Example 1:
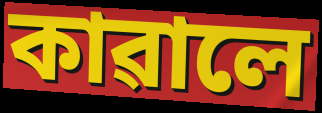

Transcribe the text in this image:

কাৱালে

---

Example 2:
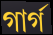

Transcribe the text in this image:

গাৰ্গ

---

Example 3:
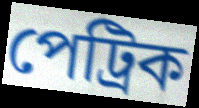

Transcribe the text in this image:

পেট্ৰিক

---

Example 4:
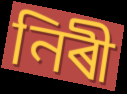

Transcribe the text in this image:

নিৰী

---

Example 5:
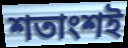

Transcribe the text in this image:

শতাংশই